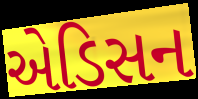
એડિસન